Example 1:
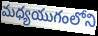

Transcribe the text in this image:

మధ్యయుగంలోని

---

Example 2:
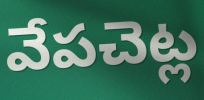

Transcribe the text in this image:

వేపచెట్ల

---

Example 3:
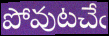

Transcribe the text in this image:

పోవుటచేఁ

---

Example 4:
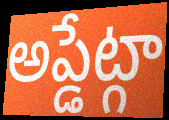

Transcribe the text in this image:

అప్డేట్గా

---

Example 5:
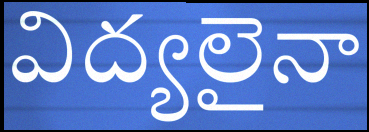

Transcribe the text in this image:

విద్యలైనా